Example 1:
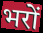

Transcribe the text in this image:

भरों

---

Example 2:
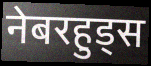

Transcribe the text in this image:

नेबरहुड्स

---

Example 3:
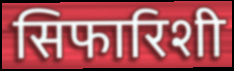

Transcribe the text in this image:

सिफारिशी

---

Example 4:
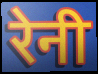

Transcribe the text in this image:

रेनी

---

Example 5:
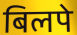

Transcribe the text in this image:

बिलपे